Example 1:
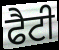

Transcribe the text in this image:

ਫੈਟੀ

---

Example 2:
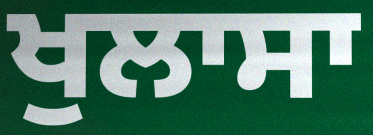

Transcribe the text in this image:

ਖੁਲਾਸਾ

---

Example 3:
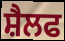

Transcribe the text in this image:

ਸ਼ੈਲਫ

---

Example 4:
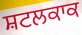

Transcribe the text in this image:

ਸ਼ਟਲਕਾਕ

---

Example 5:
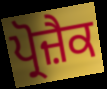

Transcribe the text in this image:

ਪ੍ਰੋਜ਼ੈਕ